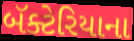
બૅક્ટેરિયાના